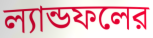
ল্যান্ডফলের